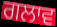
ਗਲਾਵ